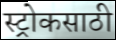
स्ट्रोकसाठी